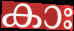
കാഃ